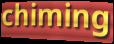
chiming